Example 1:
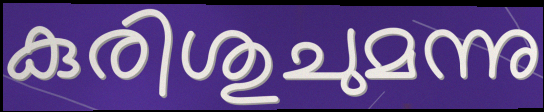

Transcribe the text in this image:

കുരിശുചുമന്നു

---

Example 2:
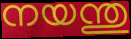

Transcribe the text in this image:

നയന്തു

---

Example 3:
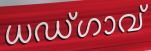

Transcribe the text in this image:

ധഡ്ഗാവ്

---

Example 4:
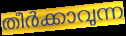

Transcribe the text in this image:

തീർക്കാവുന്ന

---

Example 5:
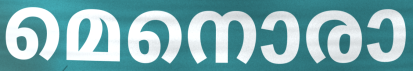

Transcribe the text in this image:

മെനൊരാ